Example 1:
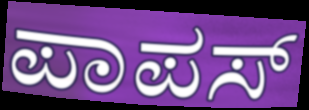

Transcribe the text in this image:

ಪಾಪಸ್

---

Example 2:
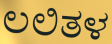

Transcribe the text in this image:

ಲಲಿತಳ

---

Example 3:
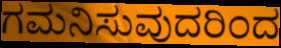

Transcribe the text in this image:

ಗಮನಿಸುವುದರಿಂದ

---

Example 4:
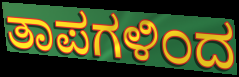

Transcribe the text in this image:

ತಾಪಗಳಿಂದ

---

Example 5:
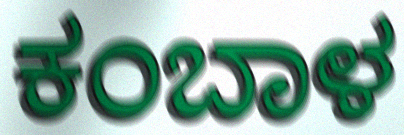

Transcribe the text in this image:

ಕಂಬಾಳ